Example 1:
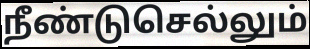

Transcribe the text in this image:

நீண்டுசெல்லும்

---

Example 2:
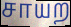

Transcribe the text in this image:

சாயற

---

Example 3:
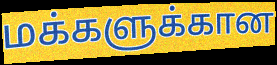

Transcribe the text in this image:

மக்களுக்கான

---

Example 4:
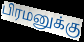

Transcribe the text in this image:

பிரமனுக்கு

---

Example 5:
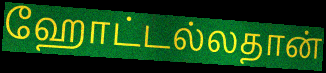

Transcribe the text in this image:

ஹோட்டல்லதான்